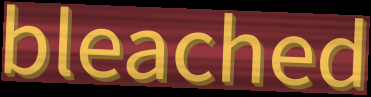
bleached